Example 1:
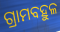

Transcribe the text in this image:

ଗ୍ରାମବହୁଳ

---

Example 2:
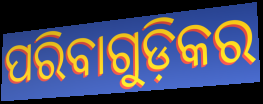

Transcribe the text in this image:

ପରିବାଗୁଡ଼ିକର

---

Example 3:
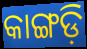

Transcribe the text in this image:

କାଙ୍ଗଡ଼ି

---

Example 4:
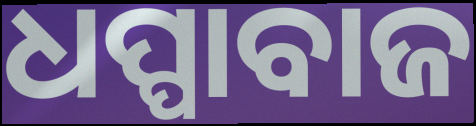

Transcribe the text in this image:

ଧପ୍ପାବାଜ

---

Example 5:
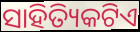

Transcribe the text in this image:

ସାହିତ୍ୟିକଟିଏ